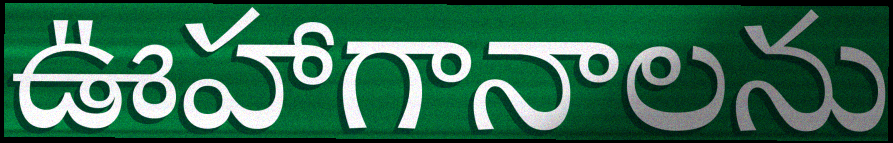
ఊహాగానాలను